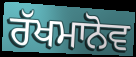
ਰੱਖਮਾਨੋਵ